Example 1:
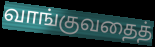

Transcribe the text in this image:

வாங்குவதைத்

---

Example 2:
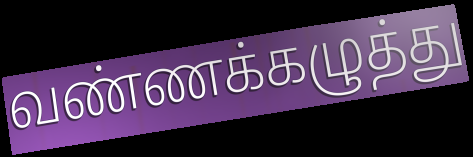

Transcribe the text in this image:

வண்ணக்கழுத்து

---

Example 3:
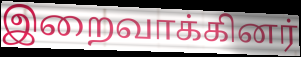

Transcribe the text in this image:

இறைவாக்கினர்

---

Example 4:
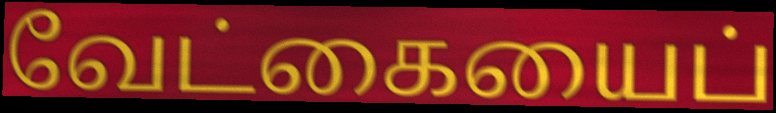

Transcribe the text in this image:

வேட்கையைப்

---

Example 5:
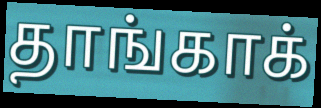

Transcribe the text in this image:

தாங்காக்